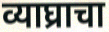
व्याघ्राचा